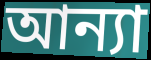
আন্যা